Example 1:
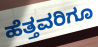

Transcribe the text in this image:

ಹೆತ್ತವರಿಗೂ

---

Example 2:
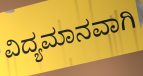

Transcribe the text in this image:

ವಿದ್ಯಮಾನವಾಗಿ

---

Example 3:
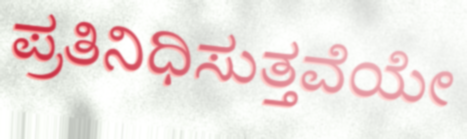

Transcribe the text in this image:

ಪ್ರತಿನಿಧಿಸುತ್ತವೆಯೇ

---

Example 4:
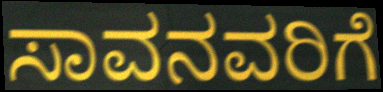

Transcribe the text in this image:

ಸಾವನವರಿಗೆ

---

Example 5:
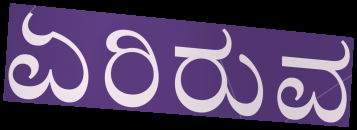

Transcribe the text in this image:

ಏರಿರುವ